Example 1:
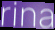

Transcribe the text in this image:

rina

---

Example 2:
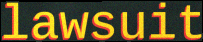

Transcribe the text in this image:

lawsuit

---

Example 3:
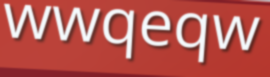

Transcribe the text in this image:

wwqeqw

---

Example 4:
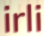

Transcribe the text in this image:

irli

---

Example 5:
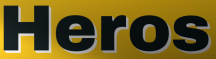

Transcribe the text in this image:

Heros